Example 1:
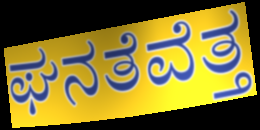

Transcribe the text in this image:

ಘನತೆವೆತ್ತ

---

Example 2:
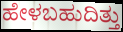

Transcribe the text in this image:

ಹೇಳಬಹುದಿತ್ತು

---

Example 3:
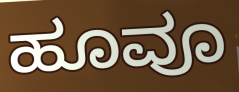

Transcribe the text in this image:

ಹೂವೂ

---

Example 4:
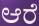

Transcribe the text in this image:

ಆರೆ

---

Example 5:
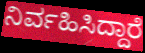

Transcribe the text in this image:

ನಿರ್ವಹಿಸಿದ್ದಾರೆ